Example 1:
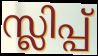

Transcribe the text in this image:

സ്ലിപ്പ്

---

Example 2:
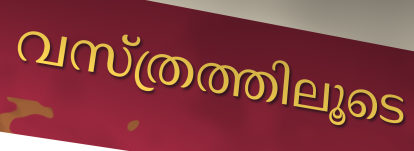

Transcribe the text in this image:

വസ്ത്രത്തിലൂടെ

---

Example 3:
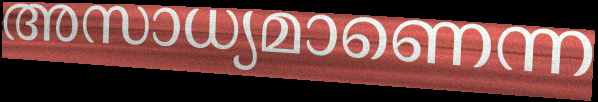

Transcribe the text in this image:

അസാധ്യമാണെന്ന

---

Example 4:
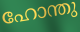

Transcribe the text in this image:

ഹോന്തു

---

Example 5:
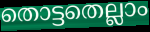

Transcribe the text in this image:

തൊട്ടതെല്ലാം